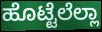
ಹೊಟ್ಟೆಲೆಲ್ಲಾ